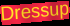
Dressup